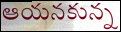
ఆయనకున్న